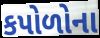
કપોળોના